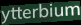
ytterbium